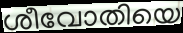
ശീവോതിയെ